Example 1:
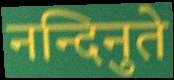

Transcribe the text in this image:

नन्दिनुते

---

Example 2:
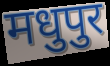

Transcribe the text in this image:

मधुपुर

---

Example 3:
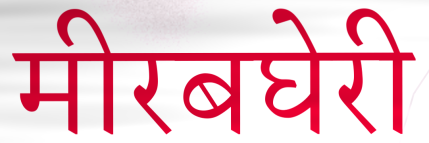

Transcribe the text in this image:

मीरबघेरी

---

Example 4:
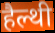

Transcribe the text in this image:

हैल्थी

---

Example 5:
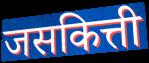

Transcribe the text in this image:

जसकित्ती